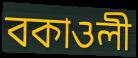
বকাওলী